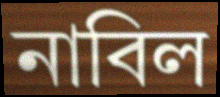
নাবিল